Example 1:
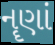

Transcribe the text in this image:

નૄણાં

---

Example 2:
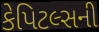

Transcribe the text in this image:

કેપિટલ્સની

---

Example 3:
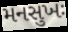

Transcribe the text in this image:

મનસુખઃ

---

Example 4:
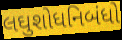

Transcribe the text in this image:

લઘુશોધનિબંધો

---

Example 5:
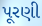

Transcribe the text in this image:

પૂરણી